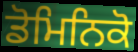
ਡੋਮਿਨਿਕੋ